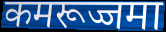
कमरूज्जमा